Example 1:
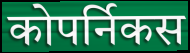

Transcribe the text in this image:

कोपर्निकस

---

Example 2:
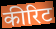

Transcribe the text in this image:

कीरिट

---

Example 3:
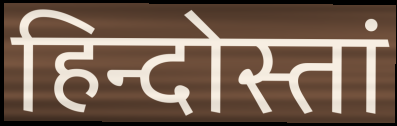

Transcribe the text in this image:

हिन्दोस्तां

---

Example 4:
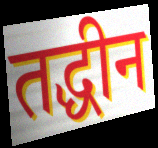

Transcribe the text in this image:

तद्धीन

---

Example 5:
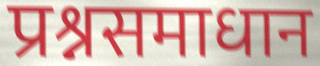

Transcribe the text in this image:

प्रश्नसमाधान